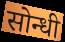
सोन्धी